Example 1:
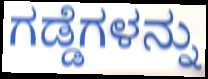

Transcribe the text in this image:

ಗಡ್ಡೆಗಳನ್ನು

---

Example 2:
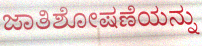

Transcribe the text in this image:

ಜಾತಿಶೋಷಣೆಯನ್ನು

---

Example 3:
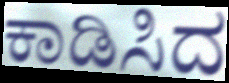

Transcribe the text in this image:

ಕಾಡಿಸಿದ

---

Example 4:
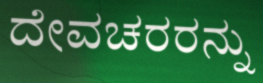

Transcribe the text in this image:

ದೇವಚರರನ್ನು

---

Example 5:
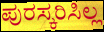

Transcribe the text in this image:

ಪುರಸ್ಕರಿಸಿಲ್ಲ